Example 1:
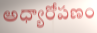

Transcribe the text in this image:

అధ్యారోపణం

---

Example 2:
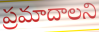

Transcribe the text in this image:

ప్రమాదాలని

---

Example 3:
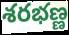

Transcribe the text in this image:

శరభణ్ణ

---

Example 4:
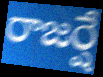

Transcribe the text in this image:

రాజర్షే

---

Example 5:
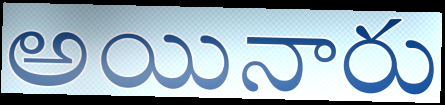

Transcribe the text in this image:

అయినారు